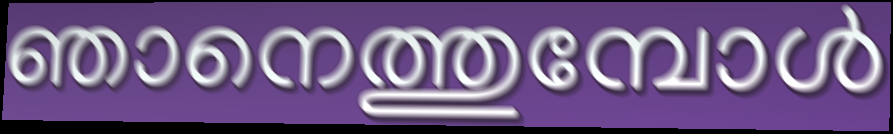
ഞാനെത്തുമ്പോൾ